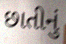
છાતીનું